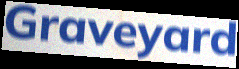
Graveyard